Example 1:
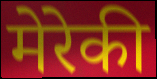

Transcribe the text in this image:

मेरेकी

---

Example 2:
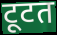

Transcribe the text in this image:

टूटत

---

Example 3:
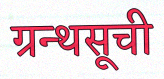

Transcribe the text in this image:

ग्रन्थसूची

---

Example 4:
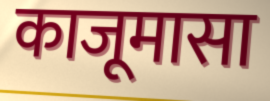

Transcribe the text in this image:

काजूमासा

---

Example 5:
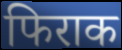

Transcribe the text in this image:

फिराक